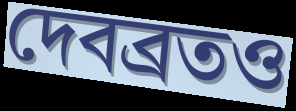
দেবব্রতও